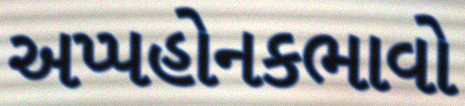
અપ્પહોનકભાવો